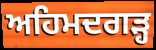
ਅਹਿਮਦਗੜ੍ਹ